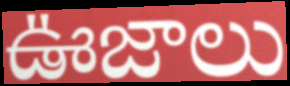
ఊజాలు